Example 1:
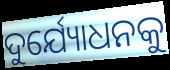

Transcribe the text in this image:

ଦୁର୍ଯ୍ୟୋଧନକୁ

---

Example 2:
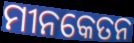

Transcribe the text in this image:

ମୀନକେତନ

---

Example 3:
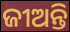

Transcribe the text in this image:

ଜୀଅନ୍ତି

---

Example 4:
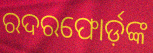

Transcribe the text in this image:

ରଦରଫୋର୍ଡ଼ଙ୍କ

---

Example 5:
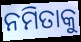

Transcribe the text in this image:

ନମିତାକୁ